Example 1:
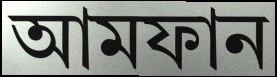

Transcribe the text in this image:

আমফান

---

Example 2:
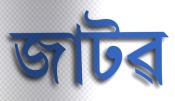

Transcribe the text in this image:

জাটৱ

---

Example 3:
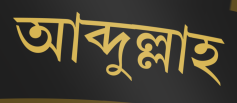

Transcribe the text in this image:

আব্দুল্লাহ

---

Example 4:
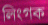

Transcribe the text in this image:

লিংগক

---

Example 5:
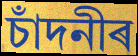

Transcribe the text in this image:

চাঁদনীৰ